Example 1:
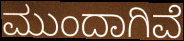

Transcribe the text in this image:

ಮುಂದಾಗಿವೆ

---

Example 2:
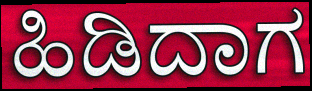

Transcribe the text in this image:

ಹಿಡಿದಾಗ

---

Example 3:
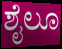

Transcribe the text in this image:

ಶೈಲೂ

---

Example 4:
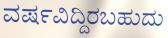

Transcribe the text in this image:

ವರ್ಷವಿದ್ದಿರಬಹುದು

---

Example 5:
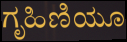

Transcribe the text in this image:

ಗೃಹಿಣಿಯೂ